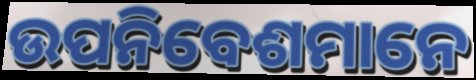
ଉପନିବେଶମାନେ